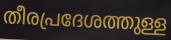
തീരപ്രദേശത്തുള്ള